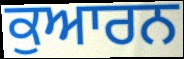
ਕੁਆਰਨ